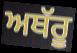
ਅਥੱਰੂ